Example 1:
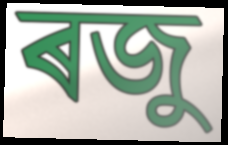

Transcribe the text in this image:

ৰজু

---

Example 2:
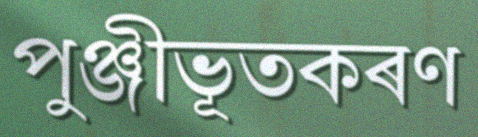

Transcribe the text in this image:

পুঞ্জীভূতকৰণ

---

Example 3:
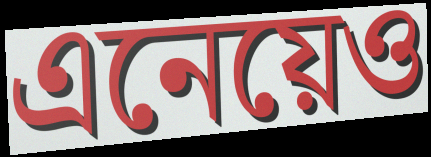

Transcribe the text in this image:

এনেয়েও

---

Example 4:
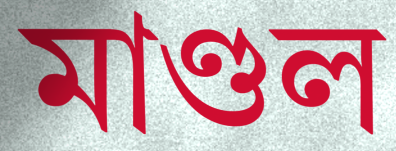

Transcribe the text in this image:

মাণ্ডল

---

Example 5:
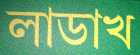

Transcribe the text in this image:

লাডাখ